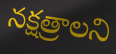
నక్షత్రాలని